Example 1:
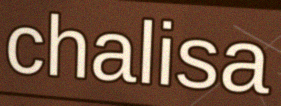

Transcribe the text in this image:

chalisa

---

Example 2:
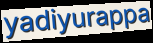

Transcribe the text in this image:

yadiyurappa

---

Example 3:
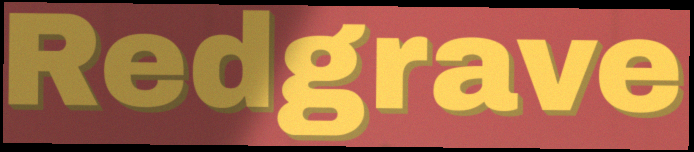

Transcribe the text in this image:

Redgrave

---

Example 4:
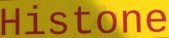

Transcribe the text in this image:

Histone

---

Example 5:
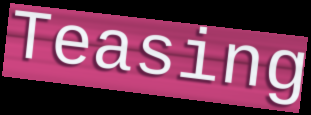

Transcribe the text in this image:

Teasing